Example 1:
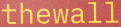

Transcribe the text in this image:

thewall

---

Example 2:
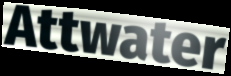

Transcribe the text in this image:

Attwater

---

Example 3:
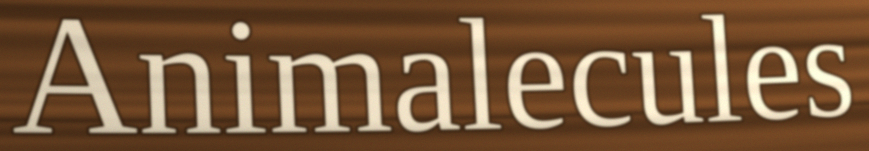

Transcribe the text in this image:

Animalecules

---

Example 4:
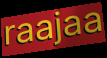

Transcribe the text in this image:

raajaa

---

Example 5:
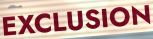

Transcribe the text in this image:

EXCLUSION